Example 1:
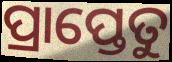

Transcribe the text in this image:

ପ୍ରାପ୍ତେତୁ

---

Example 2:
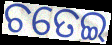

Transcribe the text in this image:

ଚତେଇ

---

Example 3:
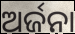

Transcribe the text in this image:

ଅର୍ଜନା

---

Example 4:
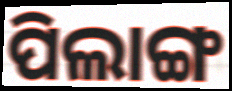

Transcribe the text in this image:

ପିଲାଙ୍ଗ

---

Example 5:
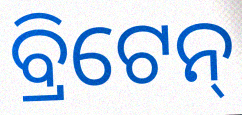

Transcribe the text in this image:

ବ୍ରିଟେନ୍